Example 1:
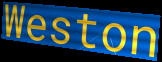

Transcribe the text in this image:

Weston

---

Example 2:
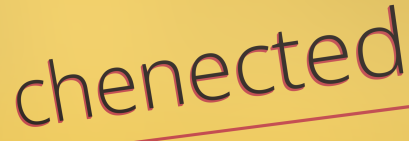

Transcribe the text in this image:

chenected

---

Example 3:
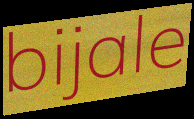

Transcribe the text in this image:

bijale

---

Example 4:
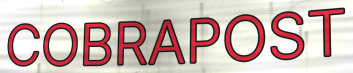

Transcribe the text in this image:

COBRAPOST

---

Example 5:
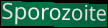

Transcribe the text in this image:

Sporozoite